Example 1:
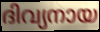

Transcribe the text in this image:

ദിവ്യനായ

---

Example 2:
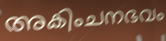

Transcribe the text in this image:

അകിംചനഭവം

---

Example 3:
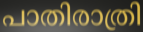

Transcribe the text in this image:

പാതിരാത്രി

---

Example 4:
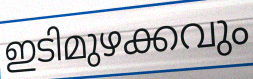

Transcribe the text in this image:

ഇടിമുഴക്കവും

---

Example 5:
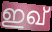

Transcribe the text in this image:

ഇഖ്